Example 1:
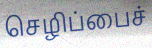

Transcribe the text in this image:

செழிப்பைச்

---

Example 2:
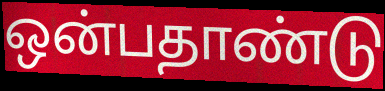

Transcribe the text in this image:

ஒன்பதாண்டு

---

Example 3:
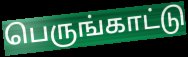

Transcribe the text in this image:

பெருங்காட்டு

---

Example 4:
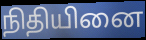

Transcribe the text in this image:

நிதியினை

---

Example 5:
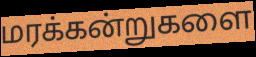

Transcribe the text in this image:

மரக்கன்றுகளை